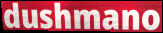
dushmano